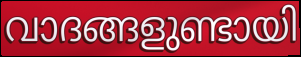
വാദങ്ങളുണ്ടായി